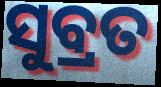
ସୁବ୍ରତ